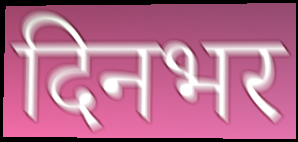
दिनभर